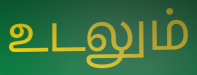
உடலும்